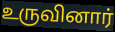
உருவினார்